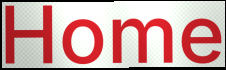
Home